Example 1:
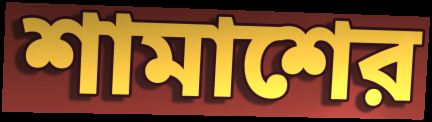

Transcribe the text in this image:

শামাশের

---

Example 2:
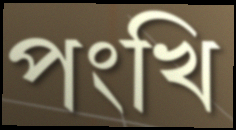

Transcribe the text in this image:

পংখি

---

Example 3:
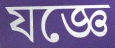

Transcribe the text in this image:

যজ্ঞে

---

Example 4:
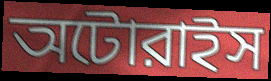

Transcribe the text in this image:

অটোরাইস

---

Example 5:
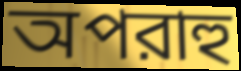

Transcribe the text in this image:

অপরাহু